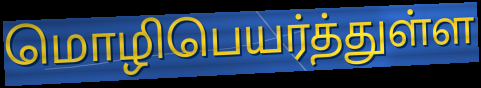
மொழிபெயர்த்துள்ள